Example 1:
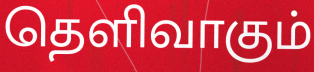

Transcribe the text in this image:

தெளிவாகும்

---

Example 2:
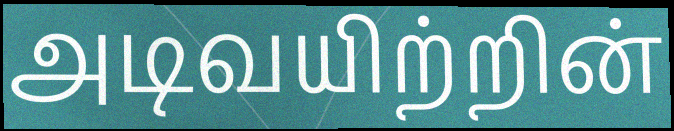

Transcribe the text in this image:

அடிவயிற்றின்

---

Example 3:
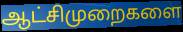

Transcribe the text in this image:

ஆட்சிமுறைகளை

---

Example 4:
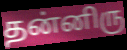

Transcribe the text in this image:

தன்னிரு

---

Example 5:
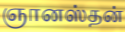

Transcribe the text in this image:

ஞானஸ்தன்